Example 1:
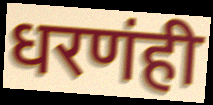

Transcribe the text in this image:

धरणंही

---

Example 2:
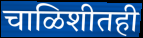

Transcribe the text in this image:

चाळिशीतही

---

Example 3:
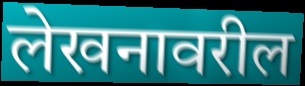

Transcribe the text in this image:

लेखनावरील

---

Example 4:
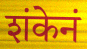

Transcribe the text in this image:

शंकेनं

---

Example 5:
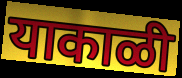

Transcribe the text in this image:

याकाळी